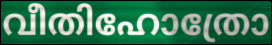
വീതിഹോത്രോ